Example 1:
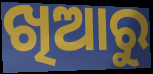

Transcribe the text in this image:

ଖିଆରୁ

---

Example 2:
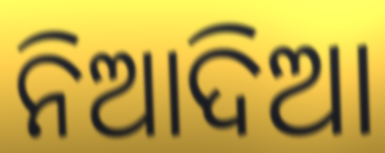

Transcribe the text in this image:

ନିଆଦିଆ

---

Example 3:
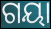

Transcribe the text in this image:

ଗୟା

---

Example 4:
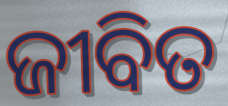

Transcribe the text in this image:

ଜୀବିତ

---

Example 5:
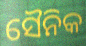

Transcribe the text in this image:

ସୈନିକ